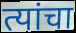
त्‍यांचा